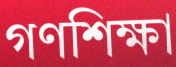
গণশিক্ষা